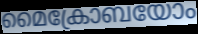
മൈക്രോബയോം